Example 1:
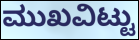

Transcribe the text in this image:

ಮುಖವಿಟ್ಟು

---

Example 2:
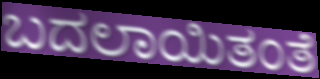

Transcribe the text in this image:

ಬದಲಾಯಿತಂತೆ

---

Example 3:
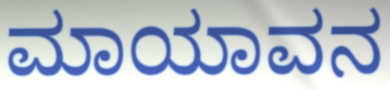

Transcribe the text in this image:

ಮಾಯಾವನ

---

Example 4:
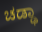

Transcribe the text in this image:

ಚಡ್ಢಾ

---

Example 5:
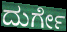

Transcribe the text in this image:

ದುರ್ಗೇ